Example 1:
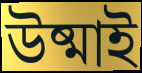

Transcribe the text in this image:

উষ্মাই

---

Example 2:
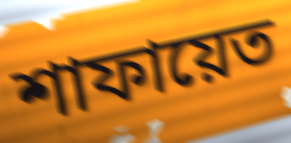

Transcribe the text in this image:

শাফায়েত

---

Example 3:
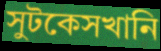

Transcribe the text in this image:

সুটকেসখানি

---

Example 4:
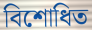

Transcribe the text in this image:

বিশোধিত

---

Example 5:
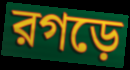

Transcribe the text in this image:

রগড়ে